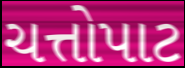
ચત્તોપાટ